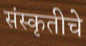
संस्कृतीचे